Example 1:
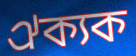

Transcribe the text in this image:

ঐক্যক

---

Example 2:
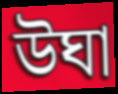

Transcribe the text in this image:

উঘা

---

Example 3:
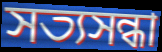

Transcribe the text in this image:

সত্যসন্ধা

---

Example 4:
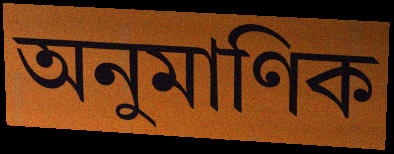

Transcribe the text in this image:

অনুমাণিক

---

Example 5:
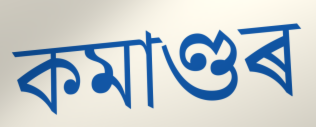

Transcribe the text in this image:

কমাণ্ডৰ